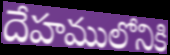
దేహములోనికి